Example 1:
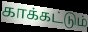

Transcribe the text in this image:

காக்கட்டும்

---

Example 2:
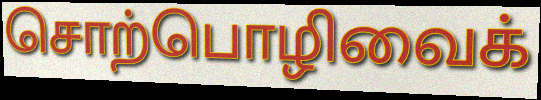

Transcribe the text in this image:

சொற்பொழிவைக்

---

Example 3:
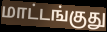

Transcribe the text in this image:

மாட்டங்குது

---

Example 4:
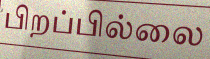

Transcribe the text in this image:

பிறப்பில்லை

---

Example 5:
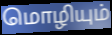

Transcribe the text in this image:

மொழியும்